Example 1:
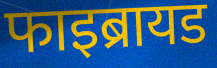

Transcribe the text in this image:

फाइब्रायड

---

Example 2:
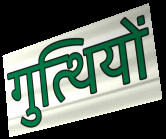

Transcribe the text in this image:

गुत्थियों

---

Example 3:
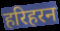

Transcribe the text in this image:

हरिहरन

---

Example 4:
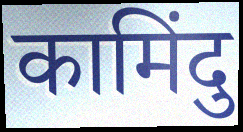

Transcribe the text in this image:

कामिंदु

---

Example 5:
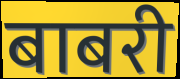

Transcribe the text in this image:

बाबरी